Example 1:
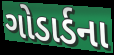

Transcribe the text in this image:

ગોડાર્ડના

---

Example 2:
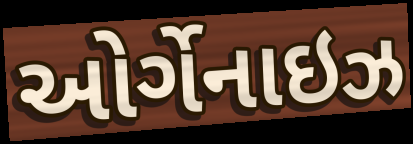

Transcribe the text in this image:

ઓર્ગેનાઇઝ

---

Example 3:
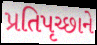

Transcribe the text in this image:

પ્રતિપૃચ્છાને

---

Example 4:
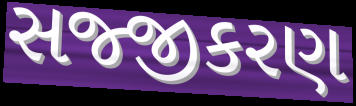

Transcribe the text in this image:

સજ્જીકરણ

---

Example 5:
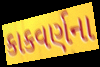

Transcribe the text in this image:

કાકવર્ણના